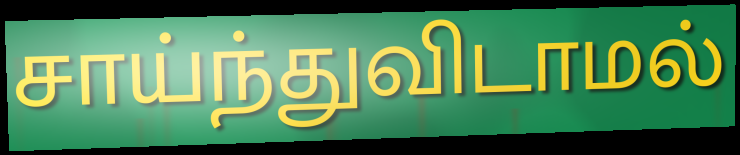
சாய்ந்துவிடாமல்